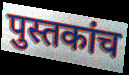
पुस्तकांच